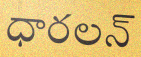
ధారలన్